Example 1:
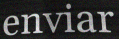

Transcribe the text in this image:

enviar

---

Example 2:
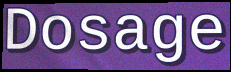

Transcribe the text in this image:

Dosage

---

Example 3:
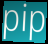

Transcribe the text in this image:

pip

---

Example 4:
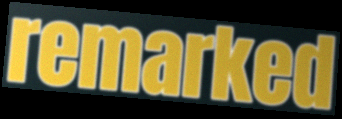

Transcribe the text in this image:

remarked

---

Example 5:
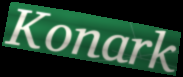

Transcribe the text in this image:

Konark